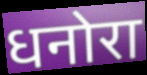
धनोरा